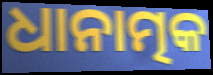
ଧାନାତ୍ମକ